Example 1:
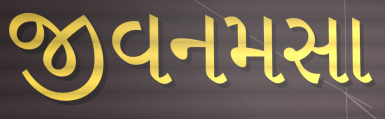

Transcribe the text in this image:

જીવનમસા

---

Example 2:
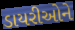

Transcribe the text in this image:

ડાયરીઓને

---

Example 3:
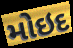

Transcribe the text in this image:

મોઇદ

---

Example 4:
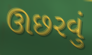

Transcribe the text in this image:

ઊછરવું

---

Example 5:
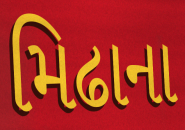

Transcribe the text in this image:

મિઢાના